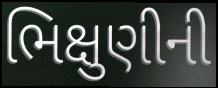
ભિક્ષુણીની